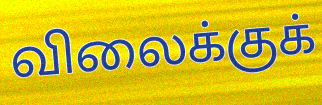
விலைக்குக்